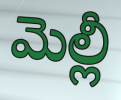
మెల్లీ